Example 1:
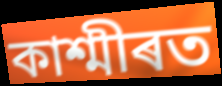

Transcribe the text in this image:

কাশ্মীৰত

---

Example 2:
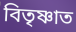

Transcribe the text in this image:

বিতৃষ্ণাত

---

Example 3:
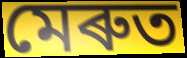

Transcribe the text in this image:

মেৰুত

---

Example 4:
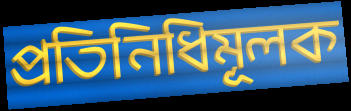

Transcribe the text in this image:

প্ৰতিনিধিমূলক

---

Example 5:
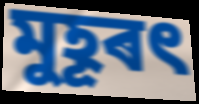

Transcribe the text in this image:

মুহূৰৎ